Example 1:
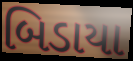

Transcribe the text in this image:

બિડાયા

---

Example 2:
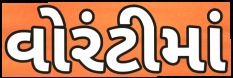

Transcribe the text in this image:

વોરંટીમાં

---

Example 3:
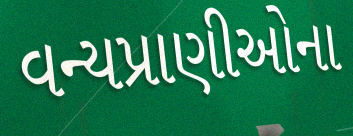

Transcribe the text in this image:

વન્યપ્રાણીઓના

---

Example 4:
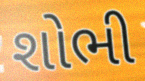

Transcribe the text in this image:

શોભી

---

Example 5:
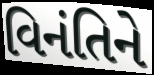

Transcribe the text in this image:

વિનંતિને